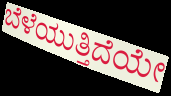
ಬೆಳೆಯುತ್ತಿದೆಯೇ